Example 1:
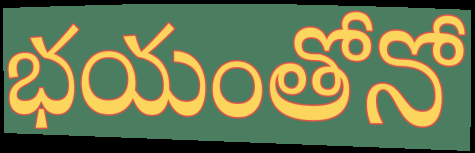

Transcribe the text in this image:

భయంతోనో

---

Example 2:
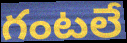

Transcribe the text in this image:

గంటలే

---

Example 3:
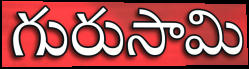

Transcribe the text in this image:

గురుసామి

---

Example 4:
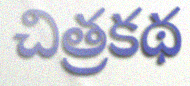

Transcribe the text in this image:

చిత్రకథ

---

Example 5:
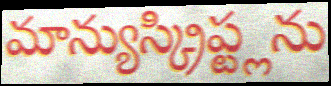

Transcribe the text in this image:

మాన్యుస్క్రిప్ట్లను